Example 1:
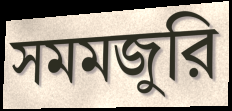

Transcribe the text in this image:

সমমজুরি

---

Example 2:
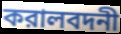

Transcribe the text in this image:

করালবদনী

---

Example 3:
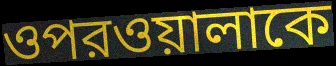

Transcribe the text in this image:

ওপরওয়ালাকে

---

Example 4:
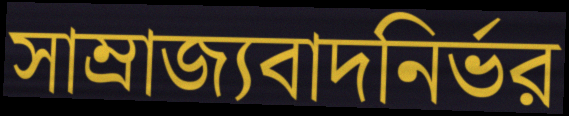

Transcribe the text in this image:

সাম্রাজ্যবাদনির্ভর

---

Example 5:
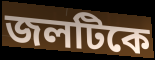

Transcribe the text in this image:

জলটিকে